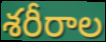
శరీరాల